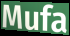
Mufa